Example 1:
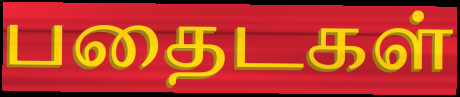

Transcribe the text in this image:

பதைடகள்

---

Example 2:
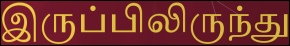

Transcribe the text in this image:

இருப்பிலிருந்து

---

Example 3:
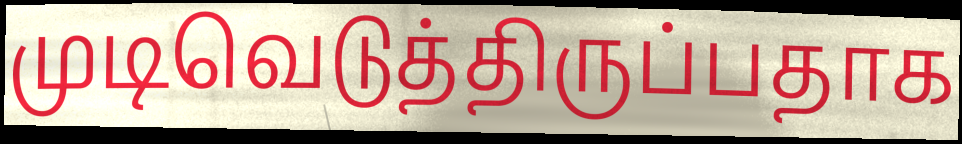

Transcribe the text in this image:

முடிவெடுத்திருப்பதாக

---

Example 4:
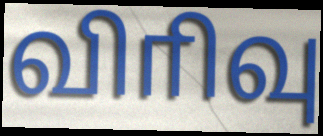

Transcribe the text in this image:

விரிவு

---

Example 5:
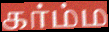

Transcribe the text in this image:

கர்ம்ம